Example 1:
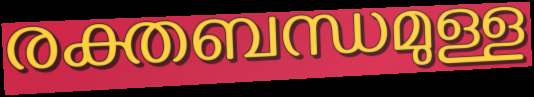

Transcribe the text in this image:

രക്തബന്ധമുള്ള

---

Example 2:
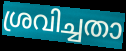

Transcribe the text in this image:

ശ്രവിച്ചതാ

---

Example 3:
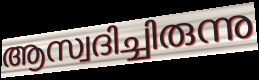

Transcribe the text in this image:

ആസ്വദിച്ചിരുന്നു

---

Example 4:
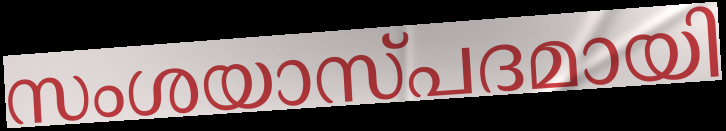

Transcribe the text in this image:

സംശയാസ്പദമായി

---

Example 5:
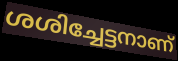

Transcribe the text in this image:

ശശിച്ചേട്ടനാണ്